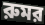
রুমর